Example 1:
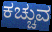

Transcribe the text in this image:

ಕಚ್ಚುವ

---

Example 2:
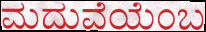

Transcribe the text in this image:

ಮದುವೆಯೆಂಬ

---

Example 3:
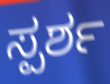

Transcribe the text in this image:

ಸ್ಪರ್ಶ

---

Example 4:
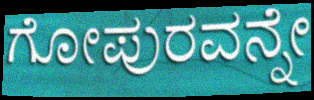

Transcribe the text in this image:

ಗೋಪುರವನ್ನೇ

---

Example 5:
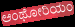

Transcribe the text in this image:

ಆಂಥೋರಿಯಂ